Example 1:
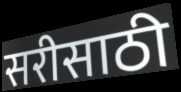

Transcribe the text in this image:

सरीसाठी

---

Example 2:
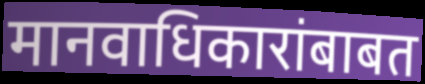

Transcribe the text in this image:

मानवाधिकारांबाबत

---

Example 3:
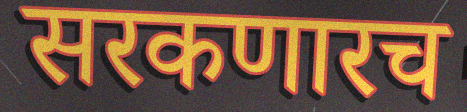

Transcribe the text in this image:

सरकणारच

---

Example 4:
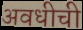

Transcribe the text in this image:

अवधीची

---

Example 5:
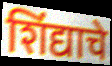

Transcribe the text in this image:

शिंद्याचे